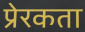
प्रेरकता